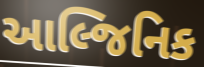
આલ્જિનિક